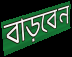
বাড়বেন